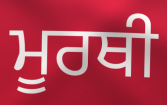
ਮੂਰਥੀ